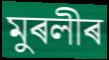
মুৰলীৰ